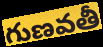
గుణవతీ